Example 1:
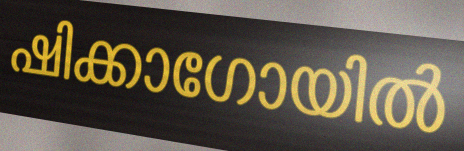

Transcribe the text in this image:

ഷിക്കാഗോയിൽ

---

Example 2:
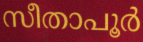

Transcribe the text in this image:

സീതാപൂർ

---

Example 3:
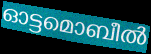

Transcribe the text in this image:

ഓട്ടമൊബീൽ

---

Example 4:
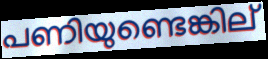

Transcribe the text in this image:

പണിയുണ്ടെങ്കില്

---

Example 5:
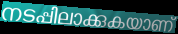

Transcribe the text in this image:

നടപ്പിലാക്കുകയാണ്